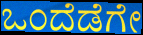
ಒಂದೆಡೆಗೇ